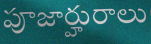
పూజార్హురాలు